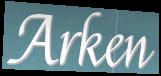
Arken